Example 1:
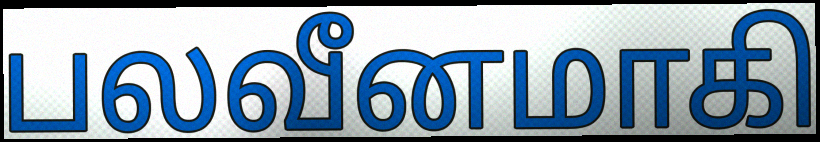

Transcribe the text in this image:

பலவீனமாகி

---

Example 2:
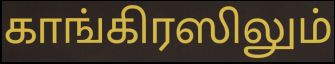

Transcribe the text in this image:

காங்கிரஸிலும்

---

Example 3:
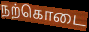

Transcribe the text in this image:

நற்கொடை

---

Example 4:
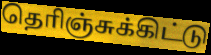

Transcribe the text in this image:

தெரிஞ்சுக்கிட்டு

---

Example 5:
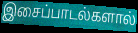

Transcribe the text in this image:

இசைப்பாடல்களால்